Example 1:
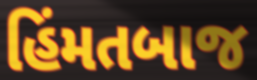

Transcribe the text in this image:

હિંમતબાજ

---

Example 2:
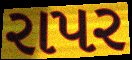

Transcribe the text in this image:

રાપર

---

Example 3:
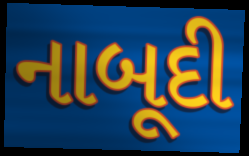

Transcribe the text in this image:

નાબૂદી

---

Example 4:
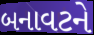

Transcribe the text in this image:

બનાવટને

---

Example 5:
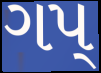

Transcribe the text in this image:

ગપ્